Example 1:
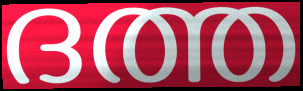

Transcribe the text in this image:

ദത്ത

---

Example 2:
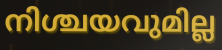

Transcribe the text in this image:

നിശ്ചയവുമില്ല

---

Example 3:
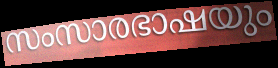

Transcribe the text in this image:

സംസാരഭാഷയും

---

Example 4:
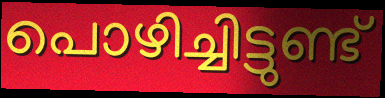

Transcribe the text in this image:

പൊഴിച്ചിട്ടുണ്ട്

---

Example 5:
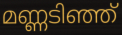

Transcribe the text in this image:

മണ്ണടിഞ്ഞ്